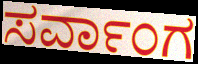
ಸರ್ವಾಂಗ